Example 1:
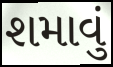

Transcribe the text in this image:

શમાવું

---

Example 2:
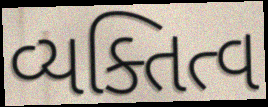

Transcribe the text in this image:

વ્યક્તિત્વ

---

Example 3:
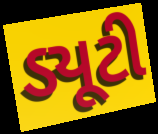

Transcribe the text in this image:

ડ્યૂટી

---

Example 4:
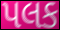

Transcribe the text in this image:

પલક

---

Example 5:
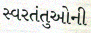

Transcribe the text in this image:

સ્વરતંતુઓની